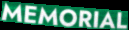
MEMORIAL